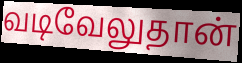
வடிவேலுதான்